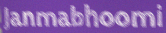
Janmabhoomi